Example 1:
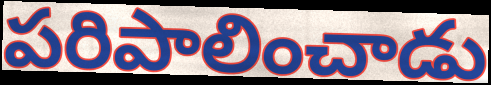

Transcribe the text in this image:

పరిపాలించాడు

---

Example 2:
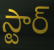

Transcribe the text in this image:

స్టార్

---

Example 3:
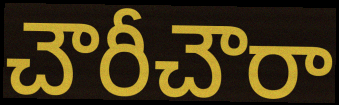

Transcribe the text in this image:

చౌరీచౌరా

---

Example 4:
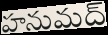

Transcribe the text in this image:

హనుమద్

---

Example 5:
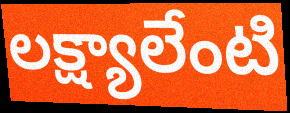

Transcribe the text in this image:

లక్ష్యాలేంటి